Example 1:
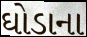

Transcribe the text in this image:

ઘોડાના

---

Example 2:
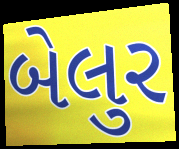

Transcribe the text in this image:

બેલુર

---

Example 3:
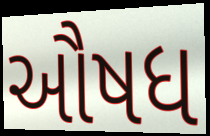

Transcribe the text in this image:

ઔષધ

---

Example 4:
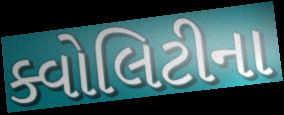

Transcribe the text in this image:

ક્વોલિટીના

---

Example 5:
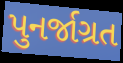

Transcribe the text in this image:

પુનર્જાગ્રત